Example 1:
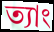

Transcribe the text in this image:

ত্যাং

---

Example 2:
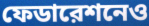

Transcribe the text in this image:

ফেডারেশনেও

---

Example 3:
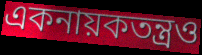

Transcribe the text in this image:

একনায়কতন্ত্রও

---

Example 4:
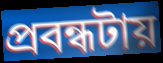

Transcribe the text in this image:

প্রবন্ধটায়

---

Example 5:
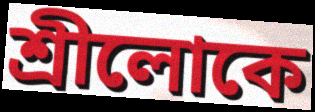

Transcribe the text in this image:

শ্রীলোকে